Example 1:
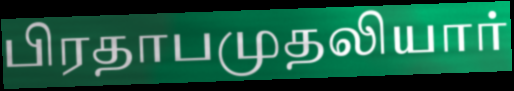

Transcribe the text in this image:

பிரதாபமுதலியார்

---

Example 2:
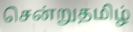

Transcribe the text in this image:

சென்றுதமிழ்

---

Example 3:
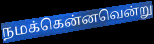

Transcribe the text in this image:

நமக்கென்னவென்று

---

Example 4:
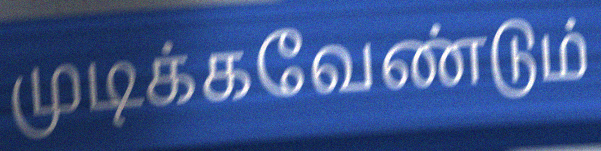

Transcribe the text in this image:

முடிக்கவேண்டும்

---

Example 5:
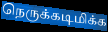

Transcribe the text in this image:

நெருக்கடிமிக்க